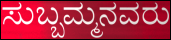
ಸುಬ್ಬಮ್ಮನವರು